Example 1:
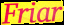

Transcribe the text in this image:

Friar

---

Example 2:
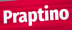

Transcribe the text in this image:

Praptino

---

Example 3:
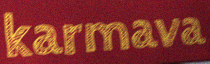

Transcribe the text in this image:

karmava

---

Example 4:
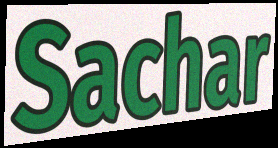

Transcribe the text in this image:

Sachar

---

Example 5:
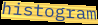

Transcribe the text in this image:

histogram